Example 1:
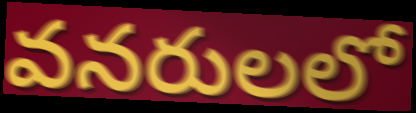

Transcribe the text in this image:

వనరులలో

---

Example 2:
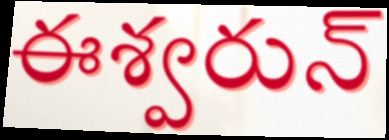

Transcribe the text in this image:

ఈశ్వరున్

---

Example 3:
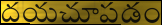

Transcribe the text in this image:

దయచూపడం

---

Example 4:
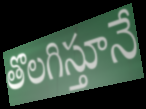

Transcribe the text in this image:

తొలగిస్తూనే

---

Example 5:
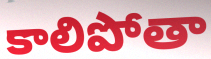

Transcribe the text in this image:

కాలిపోతా